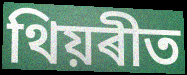
থিয়ৰীত